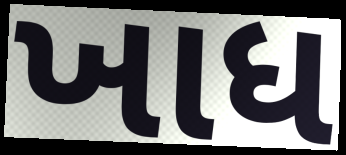
ખાધ